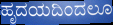
ಹೃದಯದಿಂದಲೂ